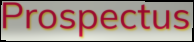
Prospectus